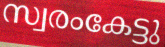
സ്വരംകേട്ടു